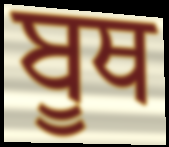
ਬੂਥ